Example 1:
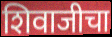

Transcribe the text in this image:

शिवाजीचा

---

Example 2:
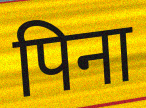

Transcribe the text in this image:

पिना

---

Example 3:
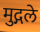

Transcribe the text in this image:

मुद्गले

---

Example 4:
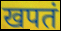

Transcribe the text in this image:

खपतं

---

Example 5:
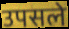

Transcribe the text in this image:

उपसले